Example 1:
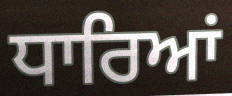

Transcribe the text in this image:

ਧਾਰਿਆਂ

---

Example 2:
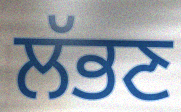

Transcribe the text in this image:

ਲੱਭਣ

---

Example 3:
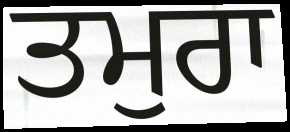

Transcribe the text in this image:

ਤਮੁਰਾ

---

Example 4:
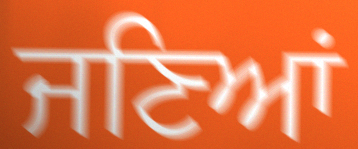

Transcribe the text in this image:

ਜਣਿਆਂ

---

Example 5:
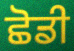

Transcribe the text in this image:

ਛੋਡੀ